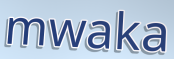
mwaka